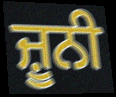
ਜ਼ੂਨੀ